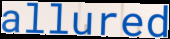
allured